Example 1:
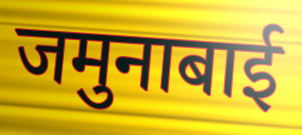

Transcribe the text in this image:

जमुनाबाई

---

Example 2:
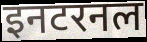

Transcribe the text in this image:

इनटरनल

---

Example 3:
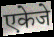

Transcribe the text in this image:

एकेजे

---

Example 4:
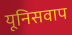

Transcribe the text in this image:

यूनिसवाप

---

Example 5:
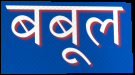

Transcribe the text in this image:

बबूल